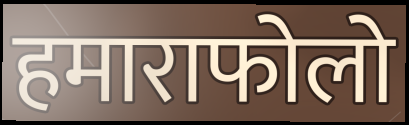
हमाराफोलो